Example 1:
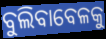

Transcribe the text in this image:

ବୁଲିବାବେଳକୁ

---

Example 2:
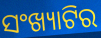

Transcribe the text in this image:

ସଂଖ୍ୟାଟିର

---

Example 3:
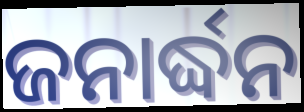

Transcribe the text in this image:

ଜନାର୍ଦ୍ଧନ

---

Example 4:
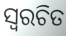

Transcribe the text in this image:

ସ୍ଵରଚିତ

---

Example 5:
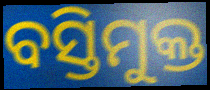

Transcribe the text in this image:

ବସ୍ତିମୁକ୍ତ